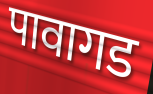
पावागड